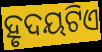
ହୃଦୟଟିଏ